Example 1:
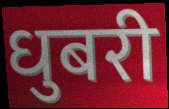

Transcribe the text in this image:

धुबरी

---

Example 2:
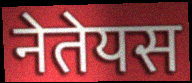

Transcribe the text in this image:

नेतेयस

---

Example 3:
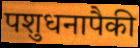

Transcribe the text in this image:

पशुधनापैकी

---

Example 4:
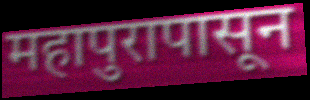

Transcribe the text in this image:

महापुरापासून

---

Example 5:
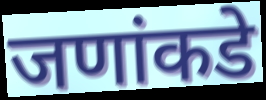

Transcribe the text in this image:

जणांकडे